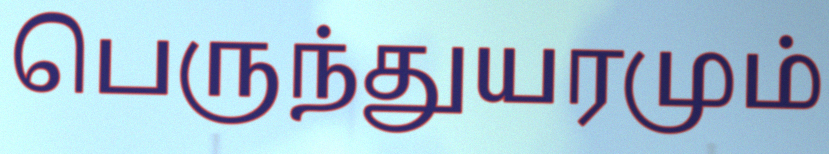
பெருந்துயரமும்